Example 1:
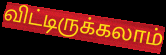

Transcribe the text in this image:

விட்டிருக்கலாம்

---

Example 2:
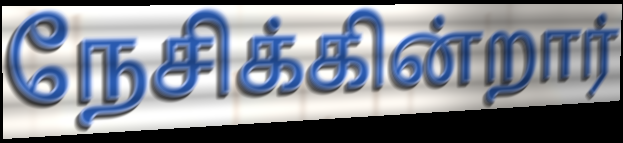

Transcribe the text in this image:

நேசிக்கின்றார்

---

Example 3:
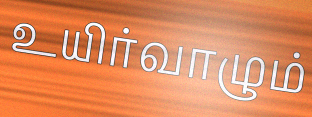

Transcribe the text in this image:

உயிர்வாழும்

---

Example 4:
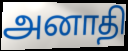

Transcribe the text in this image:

அனாதி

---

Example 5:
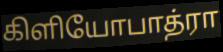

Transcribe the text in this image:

கிளியோபாத்ரா